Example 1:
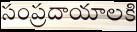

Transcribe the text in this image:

సంప్రదాయాలకి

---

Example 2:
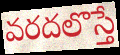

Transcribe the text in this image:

వరదలొస్తే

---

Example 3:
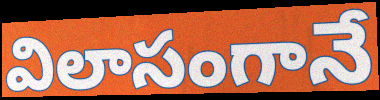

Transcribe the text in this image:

విలాసంగానే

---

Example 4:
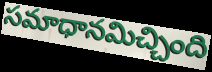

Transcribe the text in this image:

సమాధానమిచ్చింది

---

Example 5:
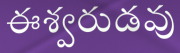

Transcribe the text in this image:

ఈశ్వరుడవు